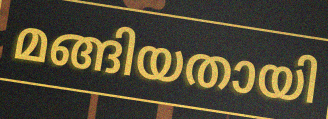
മങ്ങിയതായി